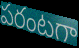
పరంటగా